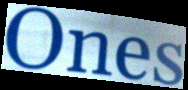
Ones